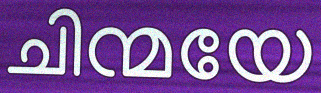
ചിന്മയേ